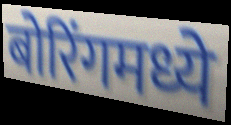
बोरिंगमध्ये